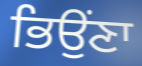
ਭਿਉਂਣਾ